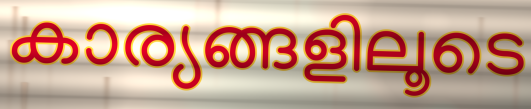
കാര്യങ്ങളിലൂടെ